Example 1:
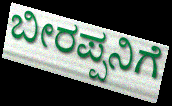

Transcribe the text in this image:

ಬೀರಪ್ಪನಿಗೆ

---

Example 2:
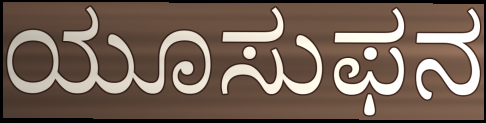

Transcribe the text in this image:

ಯೂಸುಫನ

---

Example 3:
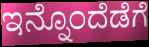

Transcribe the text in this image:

ಇನ್ನೊಂದೆಡೆಗೆ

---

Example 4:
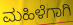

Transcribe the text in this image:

ಮಹಿಳೆಗಾಗಿ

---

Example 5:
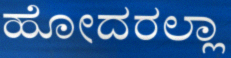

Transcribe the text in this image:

ಹೋದರಲ್ಲಾ